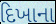
દિખાના